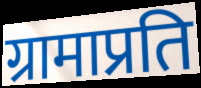
ग्रामाप्रति